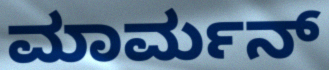
ಮಾರ್ಮನ್